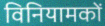
विनियामकों